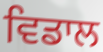
ਵਿਡਾਲ